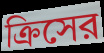
ক্রিসের